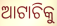
ଆଟାଚିକୁ